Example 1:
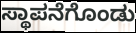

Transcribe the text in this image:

ಸ್ಥಾಪನೆಗೊಂಡು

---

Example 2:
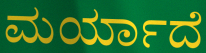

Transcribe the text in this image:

ಮರ್ಯಾದೆ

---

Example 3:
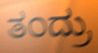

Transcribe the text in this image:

ತಂದ್ರು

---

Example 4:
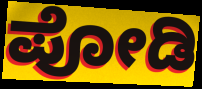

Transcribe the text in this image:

ಪೋಡಿ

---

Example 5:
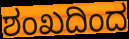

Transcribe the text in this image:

ಶಂಖದಿಂದ